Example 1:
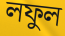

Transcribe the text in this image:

লফুল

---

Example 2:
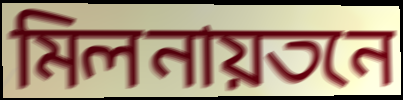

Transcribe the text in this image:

মিলনায়তনে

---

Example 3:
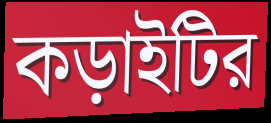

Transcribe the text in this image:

কড়াইটির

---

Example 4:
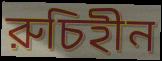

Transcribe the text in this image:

রুচিহীন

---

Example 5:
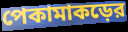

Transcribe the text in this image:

পেকামাকড়ের